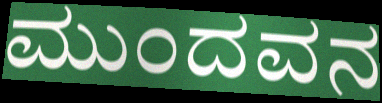
ಮುಂದವನ